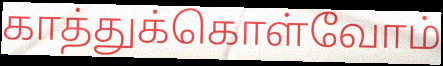
காத்துக்கொள்வோம்